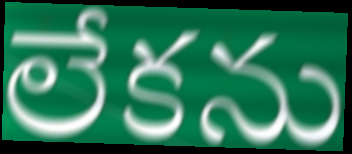
లేకను